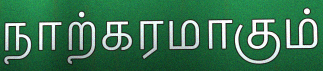
நாற்கரமாகும்